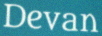
Devan